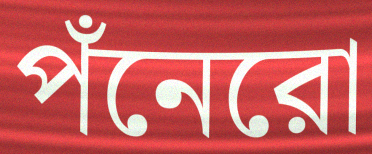
পঁনেরো